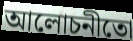
আলোচনীতো